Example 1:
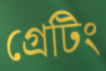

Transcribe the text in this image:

গ্রেটিং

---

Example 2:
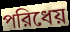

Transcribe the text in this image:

পরিধেয়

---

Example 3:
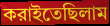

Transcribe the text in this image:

করাইতেছিলাম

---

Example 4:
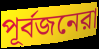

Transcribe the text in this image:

পূর্বজনেরা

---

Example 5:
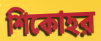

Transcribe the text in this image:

শিকোহর